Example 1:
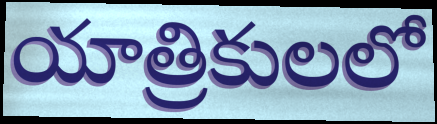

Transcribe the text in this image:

యాత్రికులలో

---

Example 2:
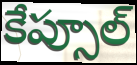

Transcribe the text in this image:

కేప్సూల్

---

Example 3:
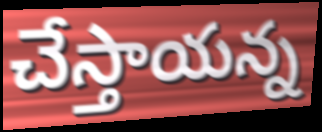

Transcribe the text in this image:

చేస్తాయన్న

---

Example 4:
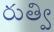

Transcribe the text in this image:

రుత్వి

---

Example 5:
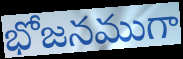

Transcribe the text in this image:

భోజనముగా